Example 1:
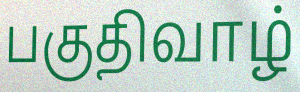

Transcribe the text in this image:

பகுதிவாழ்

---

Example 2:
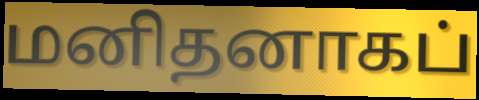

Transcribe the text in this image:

மனிதனாகப்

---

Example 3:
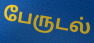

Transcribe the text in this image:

பேருடல்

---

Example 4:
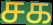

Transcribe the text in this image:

சக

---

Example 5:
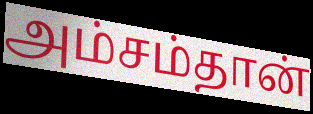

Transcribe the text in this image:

அம்சம்தான்